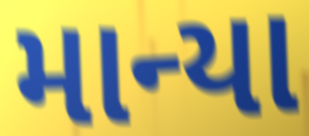
માન્યા